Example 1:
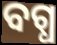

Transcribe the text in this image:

ବଗ୍ଧ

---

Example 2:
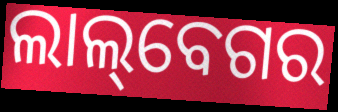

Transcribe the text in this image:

ଲାଲ୍‌ବେଗର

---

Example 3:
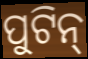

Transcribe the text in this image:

ପୁଟିନ୍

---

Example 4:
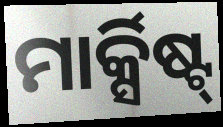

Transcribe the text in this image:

ମାର୍କ୍ସିଷ୍ଟ୍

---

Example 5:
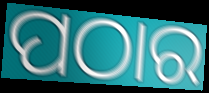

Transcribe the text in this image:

ପଠାର